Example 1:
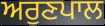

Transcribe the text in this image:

ਅਰੁਣਪਾਲ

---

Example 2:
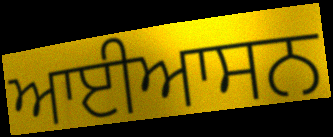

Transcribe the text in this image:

ਆਈਆਸਨ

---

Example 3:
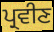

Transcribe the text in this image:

ਪ੍ਰਵੀਣ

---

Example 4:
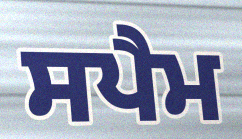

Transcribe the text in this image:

ਸਪੈਮ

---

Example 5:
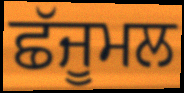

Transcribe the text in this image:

ਛੱਜੂਮਲ